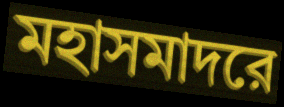
মহাসমাদরে